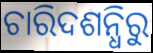
ଚାରିଦଶନ୍ଧିରୁ